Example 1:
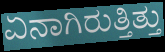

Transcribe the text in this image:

ಏನಾಗಿರುತ್ತಿತ್ತು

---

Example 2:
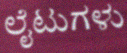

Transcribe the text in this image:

ಲೈಟುಗಳು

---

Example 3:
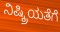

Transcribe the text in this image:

ನಿಷ್ಕ್ರಿಯತೆಗೆ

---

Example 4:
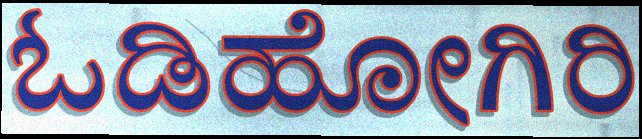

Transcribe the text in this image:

ಓಡಿಹೋಗಿರಿ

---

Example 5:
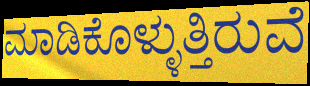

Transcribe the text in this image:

ಮಾಡಿಕೊಳ್ಳುತ್ತಿರುವೆ